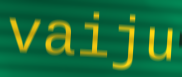
vaiju